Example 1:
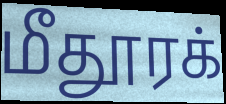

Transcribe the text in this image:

மீதூரக்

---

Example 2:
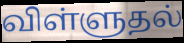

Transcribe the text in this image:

விள்ளுதல்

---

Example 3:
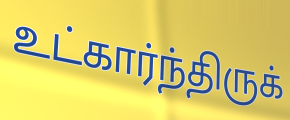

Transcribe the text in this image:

உட்கார்ந்திருக்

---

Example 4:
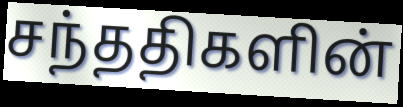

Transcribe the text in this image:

சந்ததிகளின்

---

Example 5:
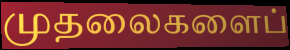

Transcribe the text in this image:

முதலைகளைப்